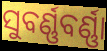
ସୁବର୍ଣ୍ଣବର୍ଣ୍ଣା